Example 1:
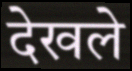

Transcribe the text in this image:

देखले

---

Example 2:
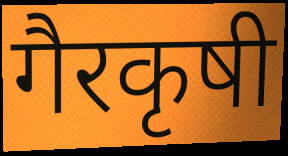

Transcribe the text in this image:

गैरकृषी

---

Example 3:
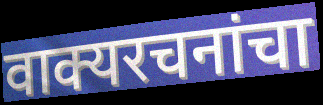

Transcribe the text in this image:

वाक्यरचनांचा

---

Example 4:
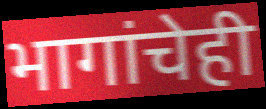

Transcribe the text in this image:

भागांचेही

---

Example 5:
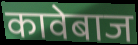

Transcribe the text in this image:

कावेबाज